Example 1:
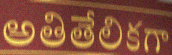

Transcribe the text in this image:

అతితేలికగా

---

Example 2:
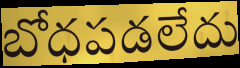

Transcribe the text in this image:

బోధపడలేదు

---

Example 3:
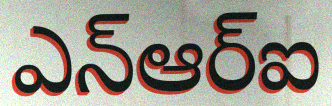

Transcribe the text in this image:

ఎన్ఆర్ఐ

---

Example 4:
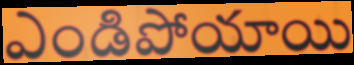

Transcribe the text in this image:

ఎండిపోయాయి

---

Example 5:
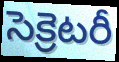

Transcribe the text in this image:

సెక్రెటరీ